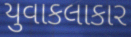
યુવાકલાકાર